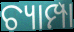
ଚ୍ୟାମ୍ପା